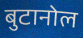
बुटानोल